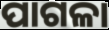
ପାଗଳା